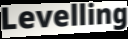
Levelling